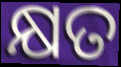
କ୍ଷତ